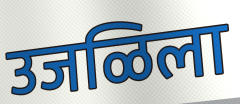
उजळिला